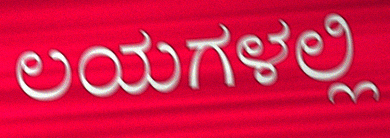
ಲಯಗಳಲ್ಲಿ